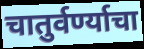
चातुर्वर्ण्याचा